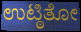
ಉಟ್ಠಿತೋ